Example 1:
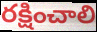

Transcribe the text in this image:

రక్షించాలి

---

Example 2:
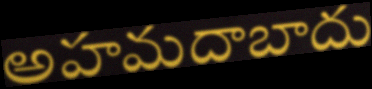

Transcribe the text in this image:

అహమదాబాదు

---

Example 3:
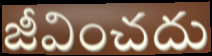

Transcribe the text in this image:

జీవించదు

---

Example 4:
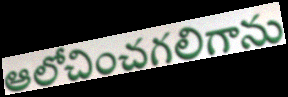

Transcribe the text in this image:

ఆలోచించగలిగాను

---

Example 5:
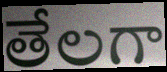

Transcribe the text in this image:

తేలగా